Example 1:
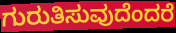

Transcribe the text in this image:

ಗುರುತಿಸುವುದೆಂದರೆ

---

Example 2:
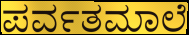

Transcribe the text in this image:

ಪರ್ವತಮಾಲೆ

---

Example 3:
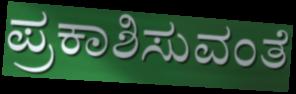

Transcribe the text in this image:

ಪ್ರಕಾಶಿಸುವಂತೆ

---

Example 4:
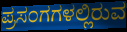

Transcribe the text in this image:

ಪ್ರಸಂಗಗಳಲ್ಲಿರುವ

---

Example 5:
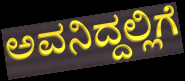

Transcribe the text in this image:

ಅವನಿದ್ದಲ್ಲಿಗೆ